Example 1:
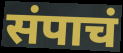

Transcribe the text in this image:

संपाचं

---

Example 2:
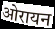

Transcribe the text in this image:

ओरायन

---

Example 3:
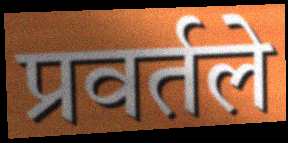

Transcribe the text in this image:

प्रवर्तले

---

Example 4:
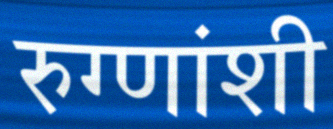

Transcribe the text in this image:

रुग्णांशी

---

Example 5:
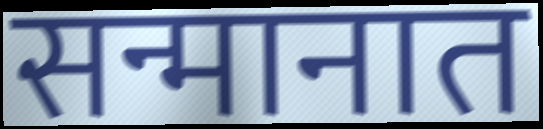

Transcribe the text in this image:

सन्मानात